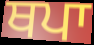
ਥਪਾ